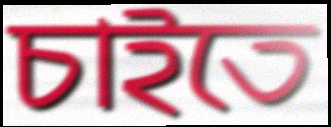
চাইতে